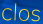
clos